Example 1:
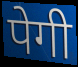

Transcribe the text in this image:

पेगी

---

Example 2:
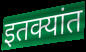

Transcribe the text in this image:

इतक्यांत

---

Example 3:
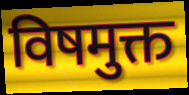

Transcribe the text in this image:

विषमुक्त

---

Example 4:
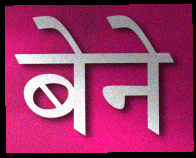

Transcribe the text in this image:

बेने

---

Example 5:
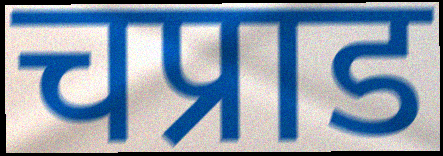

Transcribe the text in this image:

चप्राड